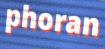
phoran